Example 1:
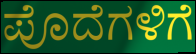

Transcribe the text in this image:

ಪೊದೆಗಳಿಗೆ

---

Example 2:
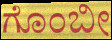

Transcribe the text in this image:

ಗೊಂಬೀ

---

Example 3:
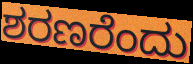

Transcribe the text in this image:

ಶರಣರೆಂದು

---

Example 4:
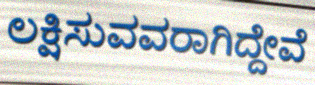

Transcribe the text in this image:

ಲಕ್ಷಿಸುವವರಾಗಿದ್ದೇವೆ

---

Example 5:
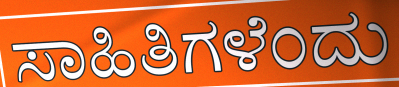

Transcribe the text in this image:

ಸಾಹಿತಿಗಳೆಂದು